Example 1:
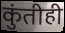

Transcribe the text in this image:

कुंतीही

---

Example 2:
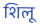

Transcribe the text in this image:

शिलू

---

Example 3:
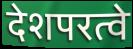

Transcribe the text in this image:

देशपरत्वे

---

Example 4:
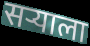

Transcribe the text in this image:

सऱ्याला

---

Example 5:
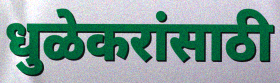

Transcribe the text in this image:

धुळेकरांसाठी